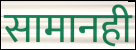
सामानही